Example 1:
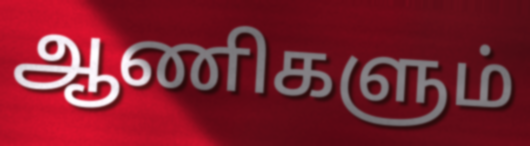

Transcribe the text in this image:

ஆணிகளும்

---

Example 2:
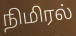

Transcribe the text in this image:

நிமிரல்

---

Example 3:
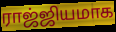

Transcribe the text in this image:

ராஜ்ஜியமாக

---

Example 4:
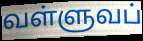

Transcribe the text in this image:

வள்ளுவப்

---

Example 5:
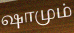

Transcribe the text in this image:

ஷாமும்